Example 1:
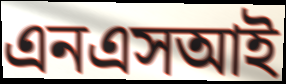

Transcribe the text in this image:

এনএসআই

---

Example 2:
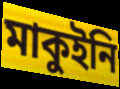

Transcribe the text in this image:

মাকুইনি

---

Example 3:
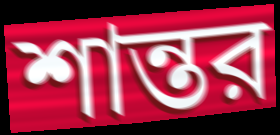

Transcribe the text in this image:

শান্তর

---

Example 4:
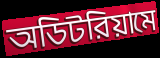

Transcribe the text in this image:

অডিটরিয়ামে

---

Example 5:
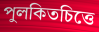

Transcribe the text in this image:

পুলকিতচিত্তে